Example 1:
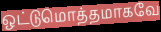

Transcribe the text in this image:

ஒட்டுமொத்தமாகவே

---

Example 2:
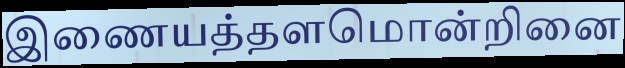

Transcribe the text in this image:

இணையத்தளமொன்றினை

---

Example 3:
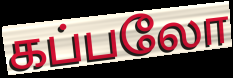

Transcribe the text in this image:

கப்பலோ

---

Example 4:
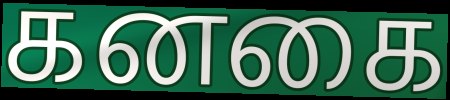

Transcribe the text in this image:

கனகை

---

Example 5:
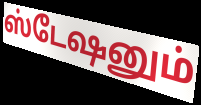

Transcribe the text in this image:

ஸ்டேஷனும்